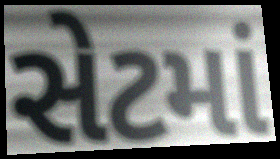
સેટમાં